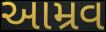
આમ્રવ